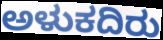
ಅಳುಕದಿರು